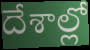
దేశాల్లో